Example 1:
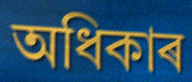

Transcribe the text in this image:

অধিকাৰ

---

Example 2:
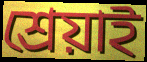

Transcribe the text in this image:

শ্ৰেয়াই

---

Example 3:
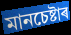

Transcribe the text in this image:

মানচেষ্টাৰ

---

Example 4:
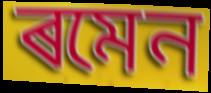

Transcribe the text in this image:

ৰমেন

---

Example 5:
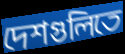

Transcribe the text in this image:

দেশগুলিতে